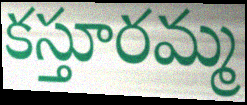
కస్తూరమ్మ